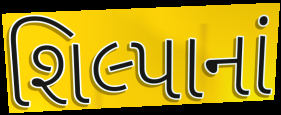
શિલ્પાનાં